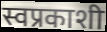
स्वप्रकाशी